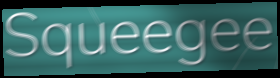
Squeegee